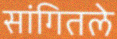
सांगितले